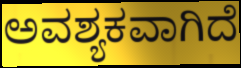
ಅವಶ್ಯಕವಾಗಿದೆ